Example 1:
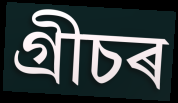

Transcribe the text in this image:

গ্ৰীচৰ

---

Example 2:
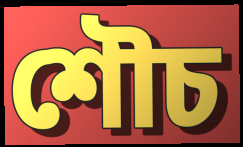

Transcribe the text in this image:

শৌচ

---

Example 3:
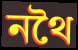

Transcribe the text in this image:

নথৈ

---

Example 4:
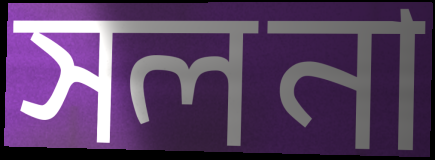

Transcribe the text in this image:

সলনা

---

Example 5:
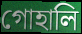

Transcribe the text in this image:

গোহালি